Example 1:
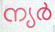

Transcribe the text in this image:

ന്യർ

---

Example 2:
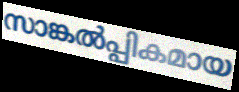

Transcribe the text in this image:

സാങ്കൽപ്പികമായ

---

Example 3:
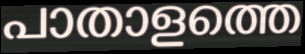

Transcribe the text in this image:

പാതാളത്തെ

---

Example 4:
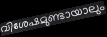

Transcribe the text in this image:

വിശേഷമുണ്ടായാലും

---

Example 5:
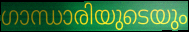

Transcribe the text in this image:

ഗാന്ധാരിയുടെയും